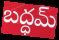
బద్ధమ్